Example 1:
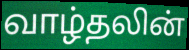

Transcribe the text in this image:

வாழ்தலின்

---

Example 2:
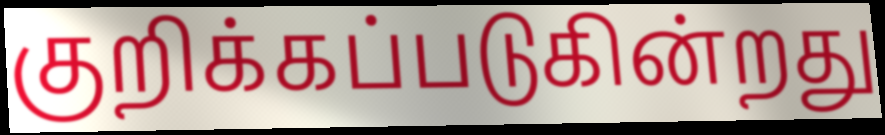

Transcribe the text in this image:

குறிக்கப்படுகின்றது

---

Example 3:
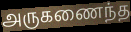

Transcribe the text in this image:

அருகணைந்த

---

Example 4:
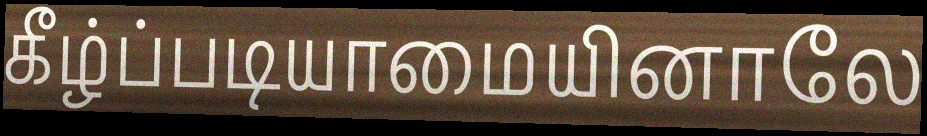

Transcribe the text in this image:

கீழ்ப்படியாமையினாலே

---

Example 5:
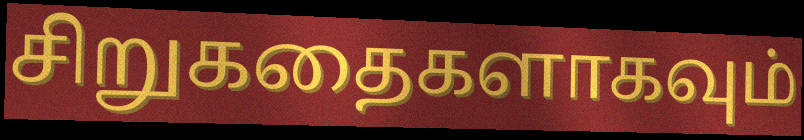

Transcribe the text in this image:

சிறுகதைகளாகவும்